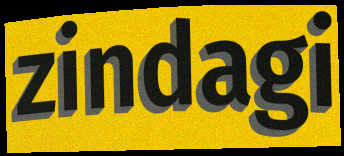
zindagi